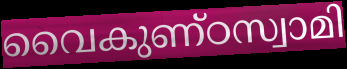
വൈകുണ്ഠസ്വാമി